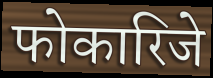
फोकारिजे